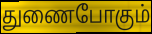
துணைபோகும்